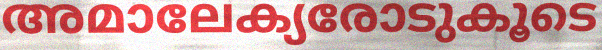
അമാലേക്യരോടുകൂടെ